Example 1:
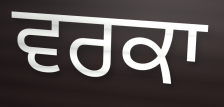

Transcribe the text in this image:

ਵਰਕਾ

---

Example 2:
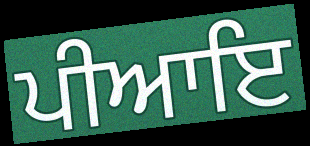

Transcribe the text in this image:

ਪੀਆਇ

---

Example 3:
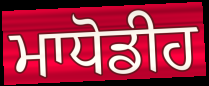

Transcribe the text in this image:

ਮਾਧੋਡੀਹ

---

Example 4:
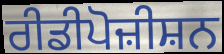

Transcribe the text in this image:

ਰੀਡੀਪੋਜ਼ੀਸ਼ਨ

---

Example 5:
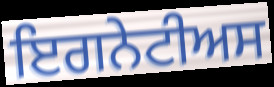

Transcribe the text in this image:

ਇਗਨੇਟੀਅਸ